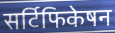
सर्टिफिकेषन